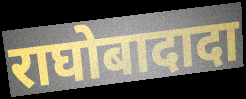
राघोबादादा